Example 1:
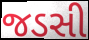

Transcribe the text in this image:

જડસી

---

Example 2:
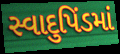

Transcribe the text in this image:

સ્વાદુપિંડમાં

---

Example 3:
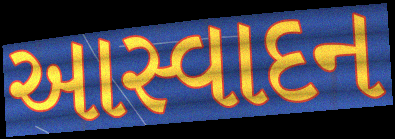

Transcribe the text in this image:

આસ્વાદન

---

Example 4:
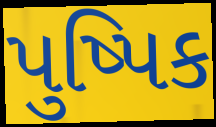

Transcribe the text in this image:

પુષ્પિક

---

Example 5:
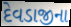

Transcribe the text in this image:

દેવડાજીના